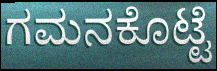
ಗಮನಕೊಟ್ಟೆ